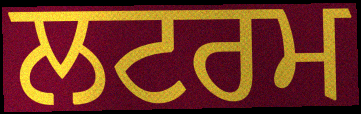
ਲਟਰਮ